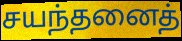
சயந்தனைத்